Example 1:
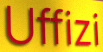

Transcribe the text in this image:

Uffizi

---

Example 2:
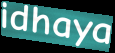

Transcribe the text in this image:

idhaya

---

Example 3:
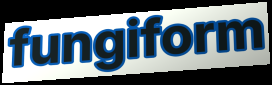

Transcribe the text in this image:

fungiform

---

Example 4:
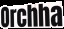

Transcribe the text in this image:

Orchha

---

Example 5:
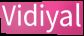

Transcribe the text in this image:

Vidiyal